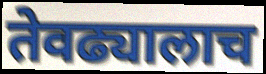
तेवढ्यालाच